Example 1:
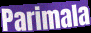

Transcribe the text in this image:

Parimala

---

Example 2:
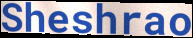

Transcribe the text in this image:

Sheshrao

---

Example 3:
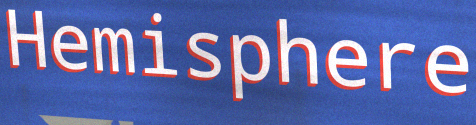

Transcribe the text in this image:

Hemisphere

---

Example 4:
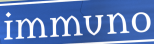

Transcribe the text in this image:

immuno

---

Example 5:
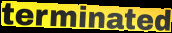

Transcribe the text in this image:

terminated